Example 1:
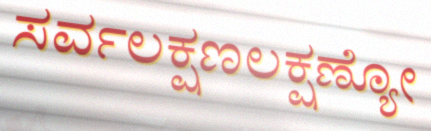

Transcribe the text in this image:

ಸರ್ವಲಕ್ಷಣಲಕ್ಷಣ್ಯೋ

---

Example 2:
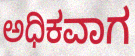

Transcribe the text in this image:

ಅಧಿಕವಾಗ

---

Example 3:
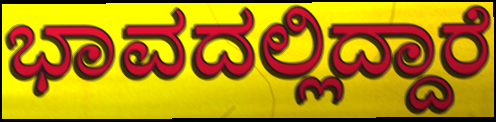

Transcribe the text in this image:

ಭಾವದಲ್ಲಿದ್ದಾರೆ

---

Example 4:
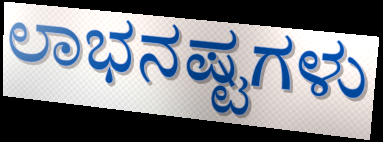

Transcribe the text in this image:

ಲಾಭನಷ್ಟಗಳು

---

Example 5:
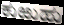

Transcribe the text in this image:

ಕುಱುಹು